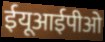
ईयूआईपीओ